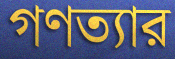
গণত্যার